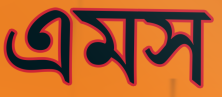
এমস